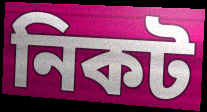
নিকট